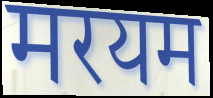
मरयम